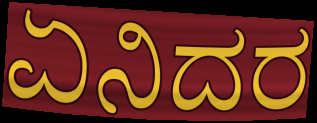
ಏನಿದರ